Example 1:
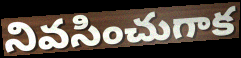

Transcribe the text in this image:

నివసించుగాక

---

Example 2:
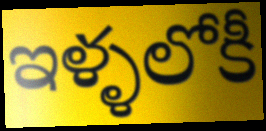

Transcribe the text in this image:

ఇళ్ళలోకీ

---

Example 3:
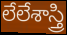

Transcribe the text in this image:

లేలేశాస్త్రి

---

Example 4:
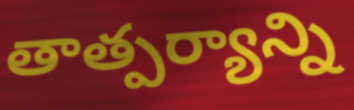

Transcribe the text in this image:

తాత్పర్యాన్ని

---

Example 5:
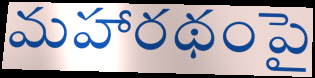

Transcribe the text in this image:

మహారథంపై